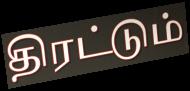
திரட்டும்